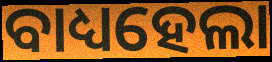
ବାଧ୍ୟହେଲା